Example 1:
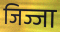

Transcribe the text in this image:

जिज्जा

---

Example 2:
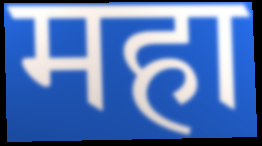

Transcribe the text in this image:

महा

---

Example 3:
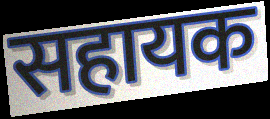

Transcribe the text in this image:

सहायक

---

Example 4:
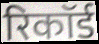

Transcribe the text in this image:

रिकॉर्ड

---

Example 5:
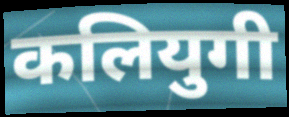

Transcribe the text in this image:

कलियुगी